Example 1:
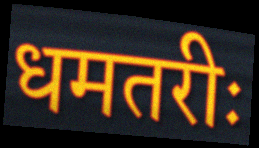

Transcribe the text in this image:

धमतरीः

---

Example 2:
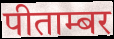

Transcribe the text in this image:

पीताम्बर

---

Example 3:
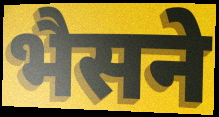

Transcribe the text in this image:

भैसने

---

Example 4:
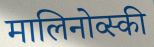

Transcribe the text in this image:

मालिनोव्स्की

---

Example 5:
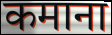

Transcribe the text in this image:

कमाना